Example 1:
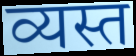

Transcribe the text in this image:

व्यस्त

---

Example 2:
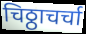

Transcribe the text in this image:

चिठ्ठाचर्चा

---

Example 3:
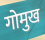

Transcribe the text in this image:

गोमुख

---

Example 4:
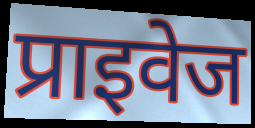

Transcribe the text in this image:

प्राइवेज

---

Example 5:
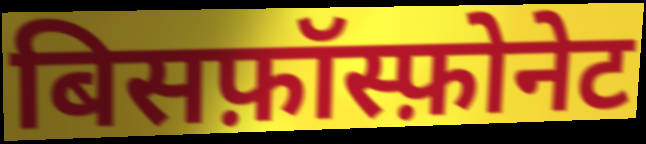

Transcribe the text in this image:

बिसफ़ॉस्फ़ोनेट